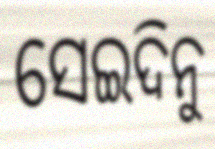
ସେଇଦିନୁ